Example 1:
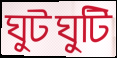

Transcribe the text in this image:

ঘুটঘুটি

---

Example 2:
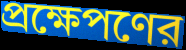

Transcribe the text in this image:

প্রক্ষেপণের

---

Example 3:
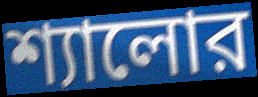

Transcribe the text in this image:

শ্যালোর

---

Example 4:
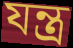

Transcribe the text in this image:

যন্ত্র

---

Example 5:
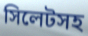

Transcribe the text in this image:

সিলেটসহ